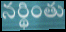
నర్థింతు